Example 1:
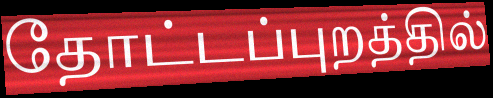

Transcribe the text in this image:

தோட்டப்புறத்தில்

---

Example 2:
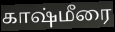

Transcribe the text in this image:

காஷ்மீரை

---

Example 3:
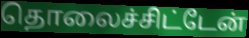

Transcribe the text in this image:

தொலைச்சிட்டேன்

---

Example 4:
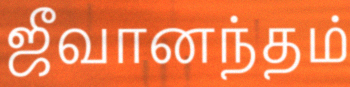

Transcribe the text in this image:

ஜீவானந்தம்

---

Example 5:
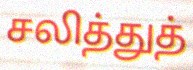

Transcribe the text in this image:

சலித்துத்